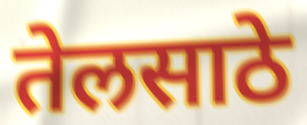
तेलसाठे